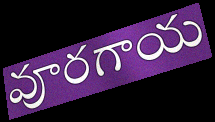
వూరగాయ